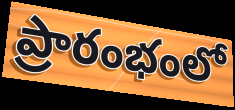
ప్రారంభంలో